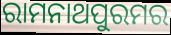
ରାମନାଥପୁରମର